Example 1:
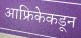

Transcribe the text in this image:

आफ्रिकेकडून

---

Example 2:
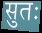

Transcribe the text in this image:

सुतः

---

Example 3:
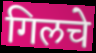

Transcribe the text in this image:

गिलचे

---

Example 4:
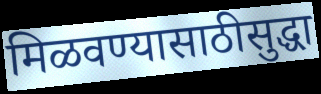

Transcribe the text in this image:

मिळवण्यासाठीसुद्धा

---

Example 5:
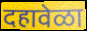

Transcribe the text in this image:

दहावेळा